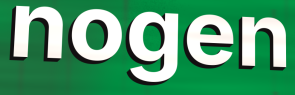
nogen